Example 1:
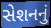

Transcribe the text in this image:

સેશનનું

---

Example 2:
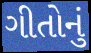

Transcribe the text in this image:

ગીતોનું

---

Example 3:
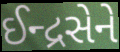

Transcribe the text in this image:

ઈન્દ્રસેને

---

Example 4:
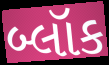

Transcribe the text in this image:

બ્લૉક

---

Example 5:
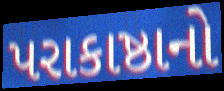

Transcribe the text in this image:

પરાકાષ્ઠાનો